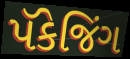
પૅકેજિંગ